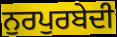
ਨੁਰਪੁਰਬੇਦੀ